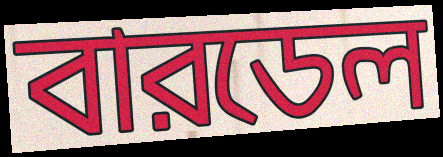
বারডেল